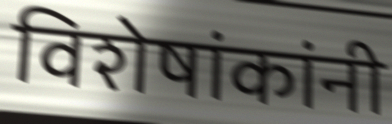
विशेषांकांनी